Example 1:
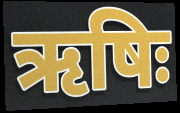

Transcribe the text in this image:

ऋषिः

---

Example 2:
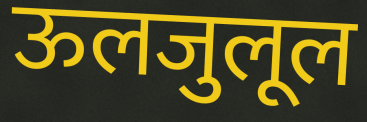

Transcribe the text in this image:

ऊलजुलूल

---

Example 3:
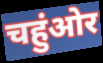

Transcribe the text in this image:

चहुंओर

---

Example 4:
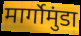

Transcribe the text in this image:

मार्गोमुंडा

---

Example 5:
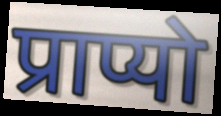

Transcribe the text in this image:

प्राप्यो